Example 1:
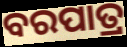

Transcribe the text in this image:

ବରପାତ୍ର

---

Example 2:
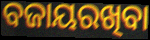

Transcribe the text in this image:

ବଜାୟରଖିବା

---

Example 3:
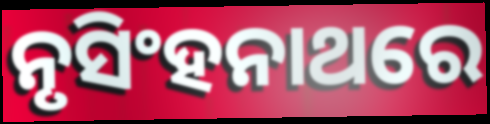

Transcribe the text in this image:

ନୃସିଂହନାଥରେ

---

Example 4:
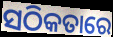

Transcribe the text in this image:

ସଠିକତାରେ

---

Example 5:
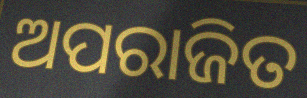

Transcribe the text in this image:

ଅପରାଜିତ